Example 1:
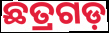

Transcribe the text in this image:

ଛତ୍ରଗଡ଼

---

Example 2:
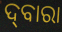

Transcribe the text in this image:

ଦ୍‌ବାରା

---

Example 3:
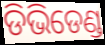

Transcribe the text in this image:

ଡିଭିଡେଣ୍ଡ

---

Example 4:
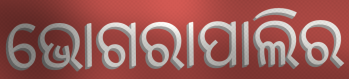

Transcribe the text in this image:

ଭୋଗରାପାଲିର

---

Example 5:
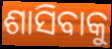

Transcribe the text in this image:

ଶାସିବାକୁ